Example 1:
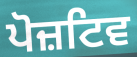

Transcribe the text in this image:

ਪੋਜ਼ਟਿਵ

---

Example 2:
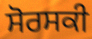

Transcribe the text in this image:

ਸੋਰਸਕੀ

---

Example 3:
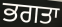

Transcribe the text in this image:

ਭਗਤਾ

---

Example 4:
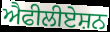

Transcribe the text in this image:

ਐਫੀਲੀਏਸ਼ਨ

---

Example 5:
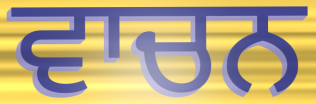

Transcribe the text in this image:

ਵਾਚਨ